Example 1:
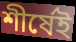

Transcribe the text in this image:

শীর্ষেই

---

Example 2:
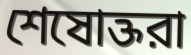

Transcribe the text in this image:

শেষোক্তরা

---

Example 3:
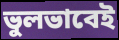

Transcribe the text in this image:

ভুলভাবেই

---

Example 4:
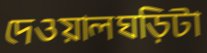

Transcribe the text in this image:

দেওয়ালঘড়িটা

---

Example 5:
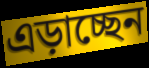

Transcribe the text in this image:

এড়াচ্ছেন